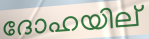
ദോഹയില്